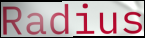
Radius